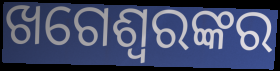
ଖଗେଶ୍ୱରଙ୍କର